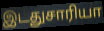
இடதுசாரியா